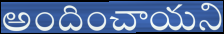
అందించాయని